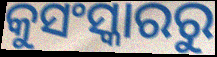
କୁସଂସ୍କାରରୁ